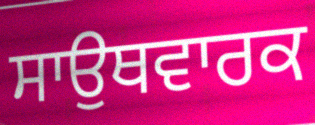
ਸਾਉਥਵਾਰਕ